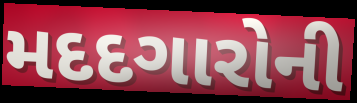
મદદગારોની